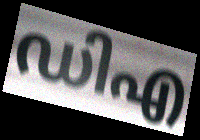
ഡിഎ